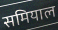
समियाल